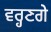
ਵਰ੍ਹਣਗੇ